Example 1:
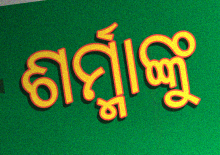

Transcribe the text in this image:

ଶର୍ମ୍ମାଙ୍କୁ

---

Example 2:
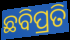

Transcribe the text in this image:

ଛବିପ୍ରତି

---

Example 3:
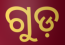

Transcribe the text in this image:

ଗୁଡ଼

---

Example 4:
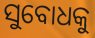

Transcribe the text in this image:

ସୁବୋଧକୁ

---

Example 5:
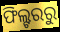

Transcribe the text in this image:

ଫିଲ୍ଟରରୁ